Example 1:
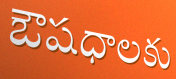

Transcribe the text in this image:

ఔషధాలకు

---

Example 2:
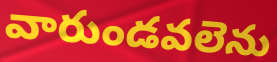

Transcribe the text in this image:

వారుండవలెను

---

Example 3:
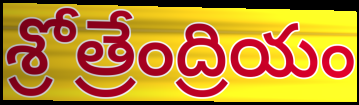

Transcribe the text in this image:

శ్రోత్రేంద్రియం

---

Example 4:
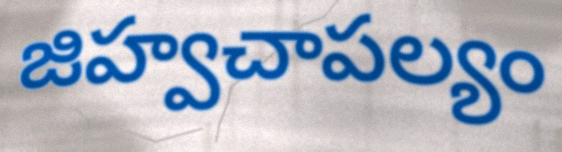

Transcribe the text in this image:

జిహ్వచాపల్యం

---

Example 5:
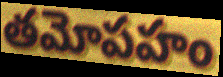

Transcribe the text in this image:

తమోపహం